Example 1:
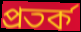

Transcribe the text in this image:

প্রতর্ক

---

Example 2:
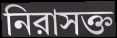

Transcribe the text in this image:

নিরাসক্ত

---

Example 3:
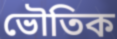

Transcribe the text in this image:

ভৌতিক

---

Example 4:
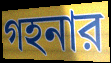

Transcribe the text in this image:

গহনার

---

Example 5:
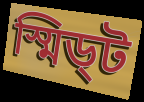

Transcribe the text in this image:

স্মিড্ট